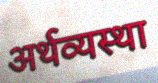
अर्थव्यस्था